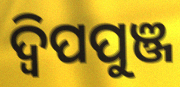
ଦ୍ଵିପପୁଞ୍ଜ